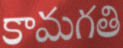
కామగతి